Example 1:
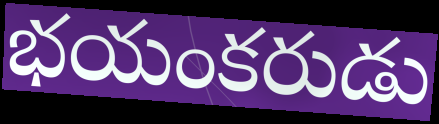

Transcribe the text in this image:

భయంకరుడు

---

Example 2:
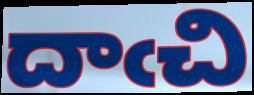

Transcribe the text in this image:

దాఁచి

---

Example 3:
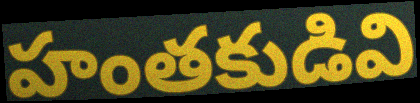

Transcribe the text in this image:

హంతకుడివి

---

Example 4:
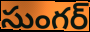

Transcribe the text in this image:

సుంగర్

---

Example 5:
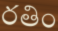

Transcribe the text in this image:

రతిం